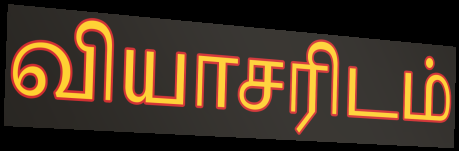
வியாசரிடம்